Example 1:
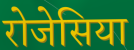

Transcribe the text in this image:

रोजेसिया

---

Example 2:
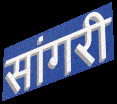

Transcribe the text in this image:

सांगरी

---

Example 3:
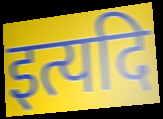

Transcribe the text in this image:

इत्यदि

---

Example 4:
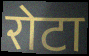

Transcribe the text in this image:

रोटा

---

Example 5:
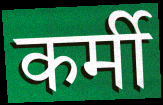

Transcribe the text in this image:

कर्मी